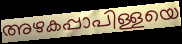
അഴകപ്പാപിള്ളയെ